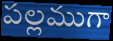
పల్లముగా